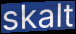
skalt